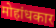
मोहांधकार